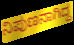
ನಿಪುಣನಾಗಿದ್ದ